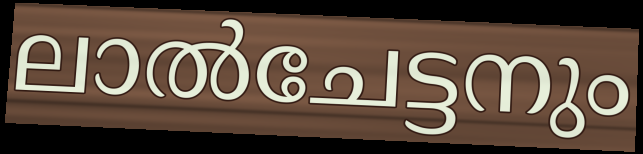
ലാൽചേട്ടനും